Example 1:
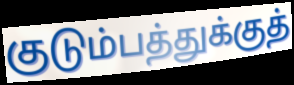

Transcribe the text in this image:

குடும்பத்துக்குத்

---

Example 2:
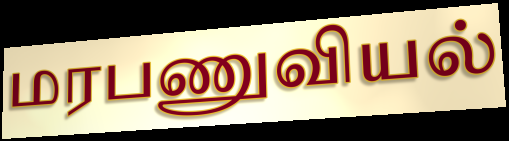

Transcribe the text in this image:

மரபணுவியல்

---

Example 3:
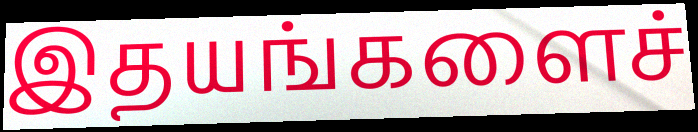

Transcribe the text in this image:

இதயங்களைச்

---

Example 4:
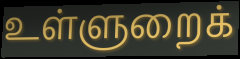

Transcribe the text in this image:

உள்ளுறைக்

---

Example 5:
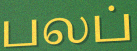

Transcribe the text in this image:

பலப்